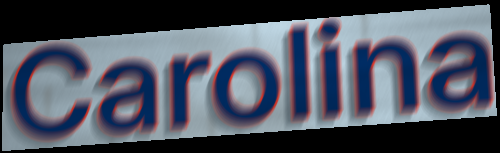
Carolina